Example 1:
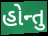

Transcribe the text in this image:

હોન્તુ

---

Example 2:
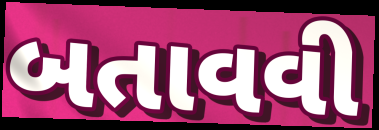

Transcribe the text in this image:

બતાવવી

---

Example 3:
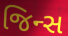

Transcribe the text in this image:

જિન્સ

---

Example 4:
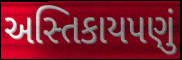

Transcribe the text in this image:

અસ્તિકાયપણું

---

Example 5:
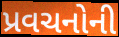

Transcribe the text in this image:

પ્રવચનોની